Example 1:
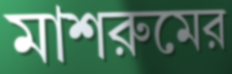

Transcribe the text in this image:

মাশরুমের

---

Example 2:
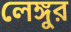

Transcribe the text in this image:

লেঙ্গুর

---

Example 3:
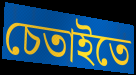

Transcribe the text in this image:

চেতাইতে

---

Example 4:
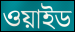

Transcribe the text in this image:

ওয়াইড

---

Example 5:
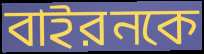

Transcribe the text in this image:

বাইরনকে